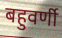
बहुवर्णी